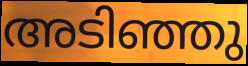
അടിഞ്ഞു